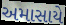
અમાસાયે